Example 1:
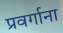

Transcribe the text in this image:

प्रवर्गाना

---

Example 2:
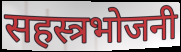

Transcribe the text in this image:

सहस्त्रभोजनी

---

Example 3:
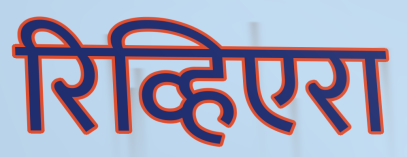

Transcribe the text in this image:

रिव्हिएरा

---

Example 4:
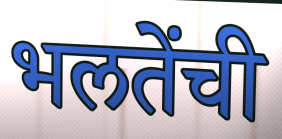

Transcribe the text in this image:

भलतेंची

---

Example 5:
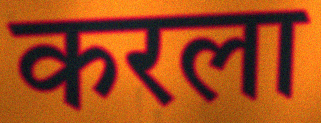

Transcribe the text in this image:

करला